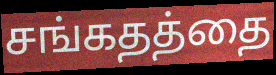
சங்கதத்தை